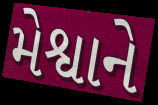
મેશ્વાને